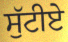
ਸੁੱਟੀਏ